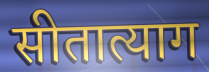
सीतात्याग